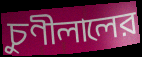
চুণীলালের